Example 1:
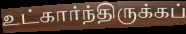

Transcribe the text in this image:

உட்கார்ந்திருக்கப்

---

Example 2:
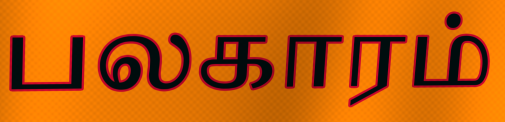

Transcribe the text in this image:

பலகாரம்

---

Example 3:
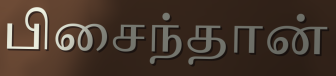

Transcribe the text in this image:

பிசைந்தான்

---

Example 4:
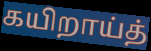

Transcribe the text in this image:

கயிறாய்த்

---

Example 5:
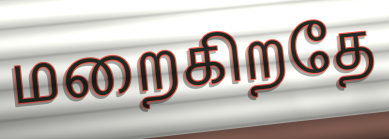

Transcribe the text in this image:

மறைகிறதே